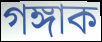
গঙ্গাক